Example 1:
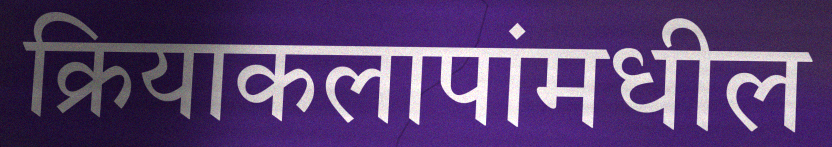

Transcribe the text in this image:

क्रियाकलापांमधील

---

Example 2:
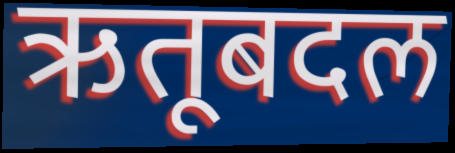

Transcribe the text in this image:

ऋतूबदल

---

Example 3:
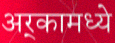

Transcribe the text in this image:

अर्कामध्ये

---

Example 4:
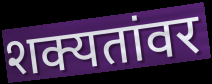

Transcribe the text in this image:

शक्यतांवर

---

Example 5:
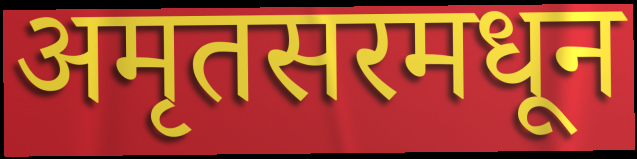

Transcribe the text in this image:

अमृतसरमधून